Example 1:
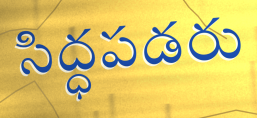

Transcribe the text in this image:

సిద్ధపడరు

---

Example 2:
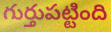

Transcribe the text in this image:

గుర్తుపట్టింది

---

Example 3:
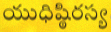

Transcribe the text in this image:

యుధిష్ఠిరస్య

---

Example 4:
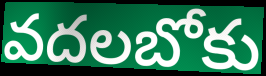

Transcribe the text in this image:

వదలబోకు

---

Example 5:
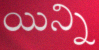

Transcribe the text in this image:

యిన్ని